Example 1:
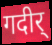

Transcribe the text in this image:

गदीर्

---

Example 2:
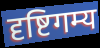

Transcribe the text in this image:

दृष्टिगम्य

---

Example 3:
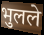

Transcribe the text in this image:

भुलले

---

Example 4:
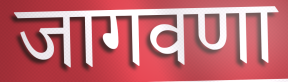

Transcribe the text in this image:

जागवणा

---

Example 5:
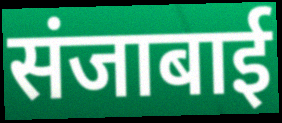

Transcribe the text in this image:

संजाबाई